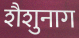
शैशुनाग